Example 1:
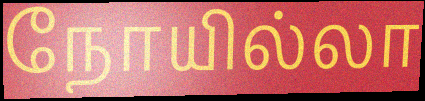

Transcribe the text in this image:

நோயில்லா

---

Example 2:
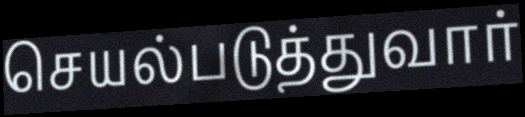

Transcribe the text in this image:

செயல்படுத்துவார்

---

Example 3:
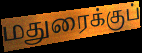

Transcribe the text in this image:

மதுரைக்குப்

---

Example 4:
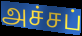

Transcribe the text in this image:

அச்சப்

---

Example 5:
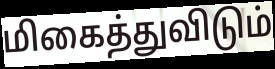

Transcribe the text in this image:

மிகைத்துவிடும்